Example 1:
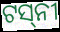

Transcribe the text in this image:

ଟସ୍‌ନୀ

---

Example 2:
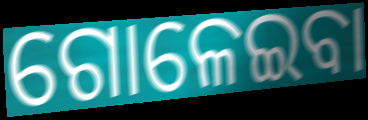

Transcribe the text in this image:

ଗୋଳେଇବା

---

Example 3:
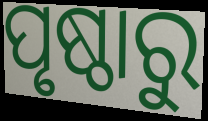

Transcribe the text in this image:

ପୃଷ୍ଠାରୁ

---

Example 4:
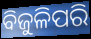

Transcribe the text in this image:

ବିଜୁଳିପରି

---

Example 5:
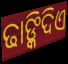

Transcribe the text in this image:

ଢାଙ୍କିଦିଏ